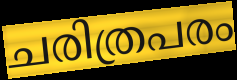
ചരിത്രപരം